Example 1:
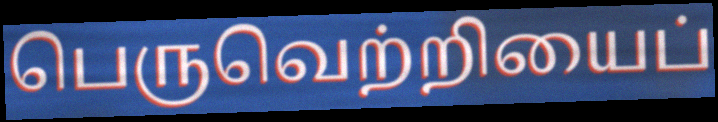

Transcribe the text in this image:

பெருவெற்றியைப்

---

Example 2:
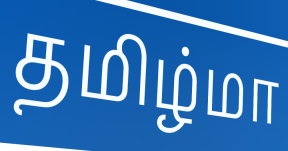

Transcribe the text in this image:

தமிழ்மா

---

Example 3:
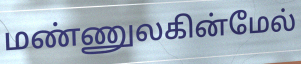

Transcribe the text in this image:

மண்ணுலகின்மேல்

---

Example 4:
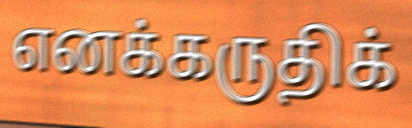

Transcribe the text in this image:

எனக்கருதிக்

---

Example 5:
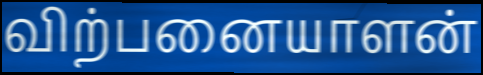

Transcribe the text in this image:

விற்பனையாளன்